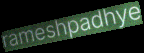
rameshpadhye